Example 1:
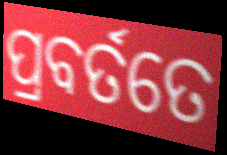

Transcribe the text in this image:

ପ୍ରବର୍ତତେ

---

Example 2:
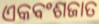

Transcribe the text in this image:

ଏକବଂଶଜାତ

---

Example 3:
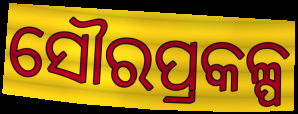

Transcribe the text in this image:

ସୌରପ୍ରକଳ୍ପ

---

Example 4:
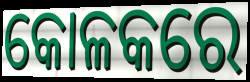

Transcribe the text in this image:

କୋଳକରେ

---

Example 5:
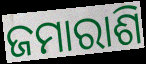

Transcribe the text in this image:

ଜମାରାଶି